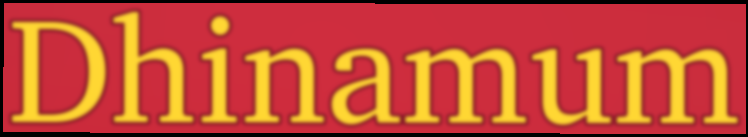
Dhinamum